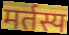
मर्तस्य